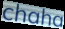
chaha